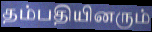
தம்பதியினரும்